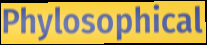
Phylosophical